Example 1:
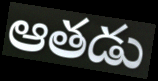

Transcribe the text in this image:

ఆతడు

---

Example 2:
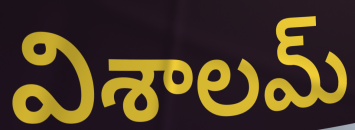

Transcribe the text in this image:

విశాలమ్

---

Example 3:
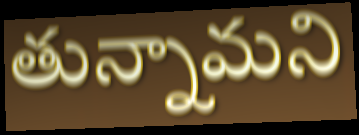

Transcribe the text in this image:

తున్నామని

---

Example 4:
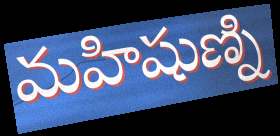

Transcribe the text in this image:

మహిషుణ్ని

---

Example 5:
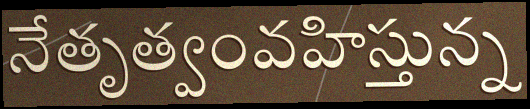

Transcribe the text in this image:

నేతృత్వంవహిస్తున్న